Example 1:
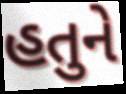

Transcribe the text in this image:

હતુને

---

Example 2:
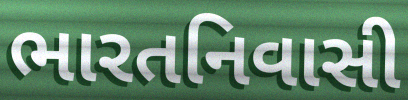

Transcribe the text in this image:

ભારતનિવાસી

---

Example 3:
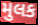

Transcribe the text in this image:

મુલક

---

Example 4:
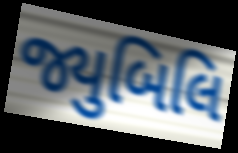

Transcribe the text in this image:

જ્યુબિલિ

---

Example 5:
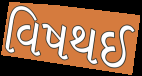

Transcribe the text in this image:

વિષથઈ